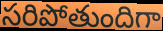
సరిపోతుందిగా